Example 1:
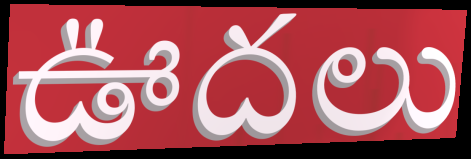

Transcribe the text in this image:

ఊదలు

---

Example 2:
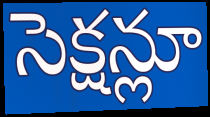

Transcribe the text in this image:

సెక్షన్లూ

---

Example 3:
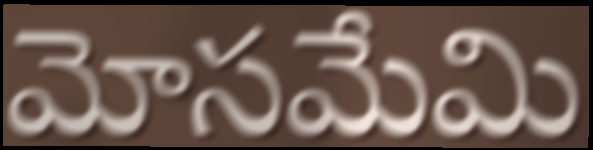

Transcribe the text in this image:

మోసమేమి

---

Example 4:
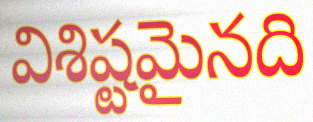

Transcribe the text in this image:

విశిష్టమైనది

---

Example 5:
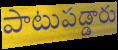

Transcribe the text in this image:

పాటుపడ్డారు